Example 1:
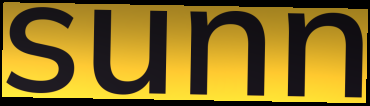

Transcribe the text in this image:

sunn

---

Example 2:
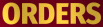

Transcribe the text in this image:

ORDERS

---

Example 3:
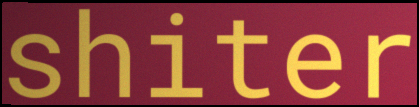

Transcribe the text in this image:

shiter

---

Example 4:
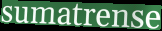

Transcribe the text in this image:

sumatrense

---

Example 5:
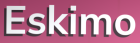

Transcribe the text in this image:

Eskimo